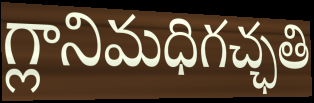
గ్లానిమధిగచ్ఛతి